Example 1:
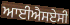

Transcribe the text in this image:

ਆਈਐਸਏਸੀ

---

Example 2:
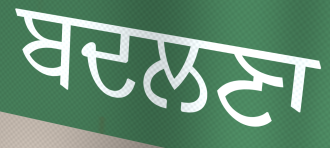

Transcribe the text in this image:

ਬਦਲਣਾ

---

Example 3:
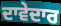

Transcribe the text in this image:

ਦਾਵੇਦਾਰ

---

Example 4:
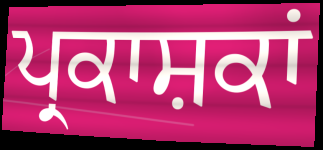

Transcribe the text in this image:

ਪ੍ਰਕਾਸ਼ਕਾਂ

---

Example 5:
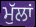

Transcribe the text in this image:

ਮੁੱਲਾਂ